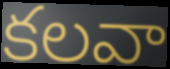
కలవా